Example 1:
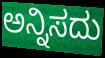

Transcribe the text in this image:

ಅನ್ನಿಸದು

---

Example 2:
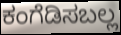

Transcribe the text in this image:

ಕಂಗೆಡಿಸಬಲ್ಲ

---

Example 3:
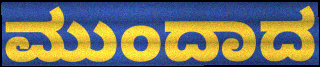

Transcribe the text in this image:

ಮುಂದಾದ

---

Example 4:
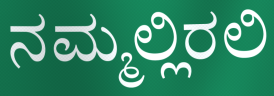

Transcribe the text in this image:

ನಮ್ಮಲ್ಲಿರಲಿ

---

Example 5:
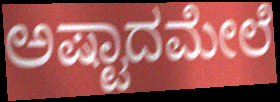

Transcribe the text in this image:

ಅಷ್ಟಾದಮೇಲೆ